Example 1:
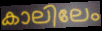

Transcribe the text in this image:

കാലിലേം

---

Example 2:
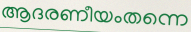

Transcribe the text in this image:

ആദരണീയംതന്നെ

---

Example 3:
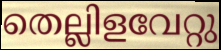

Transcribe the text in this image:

തെല്ലിളവേറ്റു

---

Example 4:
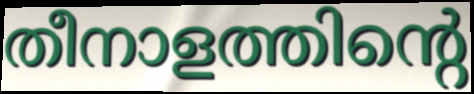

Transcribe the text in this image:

തീനാളത്തിന്റെ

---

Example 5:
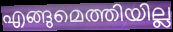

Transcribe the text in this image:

എങ്ങുമെത്തിയില്ല